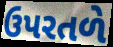
ઉપરતળે